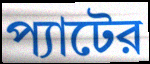
প্যাটের